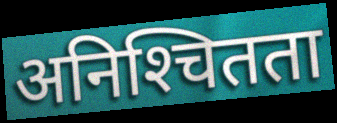
अनिश्‍चितता